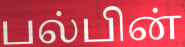
பல்பின்